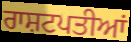
ਰਾਸ਼ਟਪਤੀਆਂ